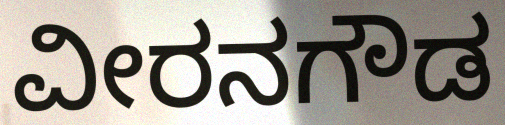
ವೀರನಗೌಡ